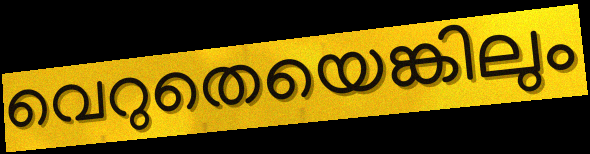
വെറുതെയെങ്കിലും